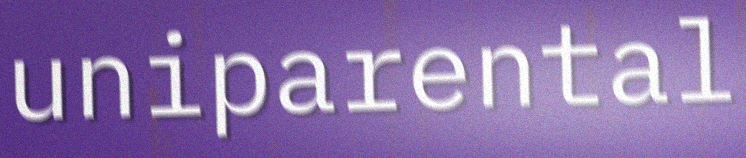
uniparental